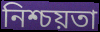
নিশ্চয়তা